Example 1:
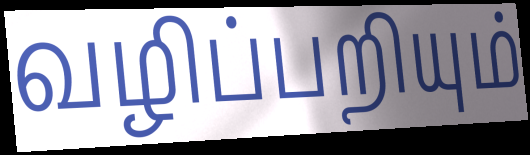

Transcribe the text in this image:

வழிப்பறியும்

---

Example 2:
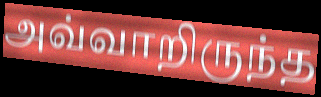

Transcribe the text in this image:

அவ்வாறிருந்த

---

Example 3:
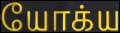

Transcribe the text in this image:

யோக்ய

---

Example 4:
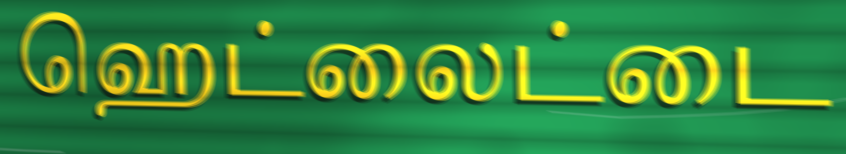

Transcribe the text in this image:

ஹெட்லைட்டை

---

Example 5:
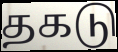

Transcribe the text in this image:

தகடு